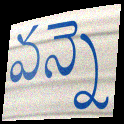
వన్నె